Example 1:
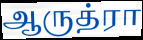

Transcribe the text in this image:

ஆருத்ரா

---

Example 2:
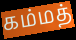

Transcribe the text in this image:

கம்மத்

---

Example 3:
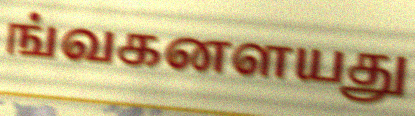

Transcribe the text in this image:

ங்வகனளயது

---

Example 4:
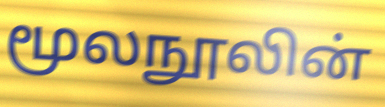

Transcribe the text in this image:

மூலநூலின்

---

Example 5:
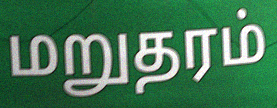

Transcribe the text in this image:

மறுதரம்